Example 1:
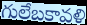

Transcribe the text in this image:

గులేబకావళి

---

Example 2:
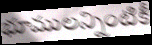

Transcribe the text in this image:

భూములన్నింటికీ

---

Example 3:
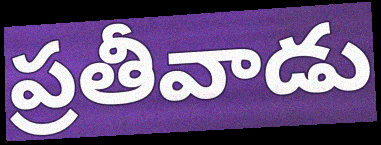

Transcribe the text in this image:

ప్రతీవాడు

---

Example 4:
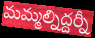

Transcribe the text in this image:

మమ్మల్నిద్దర్నీ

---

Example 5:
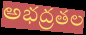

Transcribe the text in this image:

అభద్రతల